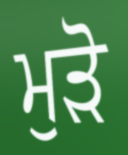
ਮੁਡ਼ੋ